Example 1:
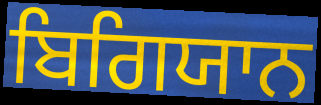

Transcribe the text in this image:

ਬਿਗਿਯਾਨ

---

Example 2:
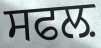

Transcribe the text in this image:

ਸਫਲ਼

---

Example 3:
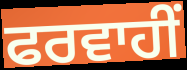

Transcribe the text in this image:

ਫਰਵਾਹੀਂ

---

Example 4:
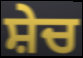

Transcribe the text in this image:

ਸ਼ੇਚ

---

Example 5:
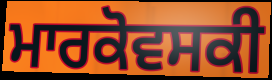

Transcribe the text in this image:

ਮਾਰਕੋਵਸਕੀ